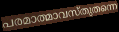
പരമാത്മാവസ്തുതന്നെ